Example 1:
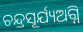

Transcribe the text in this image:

ଚନ୍ଦ୍ରସୂର୍ଯ୍ୟଅଗ୍ନି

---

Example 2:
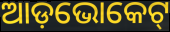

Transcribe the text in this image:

ଆଡ଼ଭୋକେଟ୍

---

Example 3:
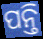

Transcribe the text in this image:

ପନ୍ତି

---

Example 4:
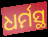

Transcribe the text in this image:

ଧର୍ମସ୍ଥ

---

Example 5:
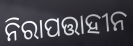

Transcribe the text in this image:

ନିରାପତ୍ତାହୀନ